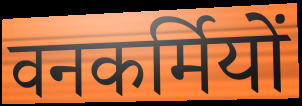
वनकर्मियों